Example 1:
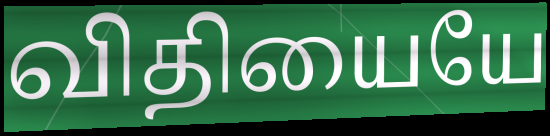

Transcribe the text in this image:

விதியையே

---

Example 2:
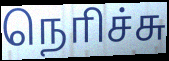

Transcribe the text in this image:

நெரிச்சு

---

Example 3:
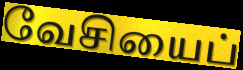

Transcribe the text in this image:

வேசியைப்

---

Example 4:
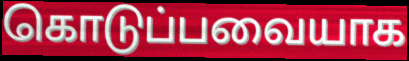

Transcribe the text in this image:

கொடுப்பவையாக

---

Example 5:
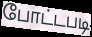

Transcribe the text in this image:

போட்டபடி